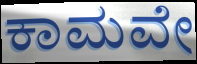
ಕಾಮವೇ